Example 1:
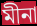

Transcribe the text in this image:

মীনা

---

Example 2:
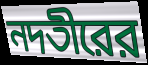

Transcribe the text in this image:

নদতীরের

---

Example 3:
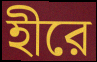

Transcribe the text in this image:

হীরে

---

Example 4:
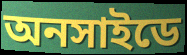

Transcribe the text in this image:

অনসাইডে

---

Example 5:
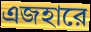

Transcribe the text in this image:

এজহারে